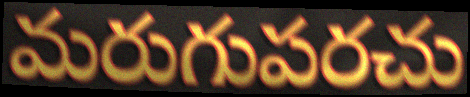
మరుగుపరచు